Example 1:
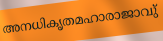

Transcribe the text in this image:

അനധികൃതമഹാരാജാവു്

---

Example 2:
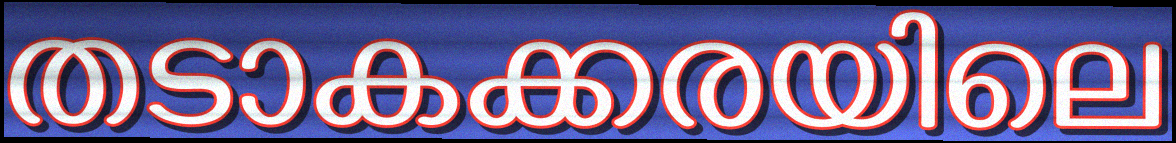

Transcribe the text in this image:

തടാകക്കരയിലെ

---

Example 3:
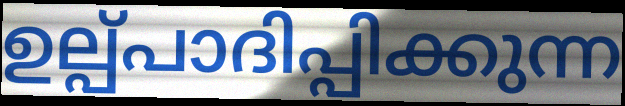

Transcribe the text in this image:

ഉല്പ്പാദിപ്പിക്കുന്ന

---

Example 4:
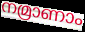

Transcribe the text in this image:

നമ്രാണാം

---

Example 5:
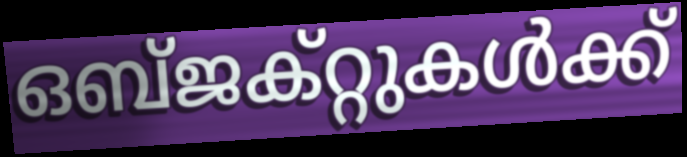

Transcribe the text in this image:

ഒബ്ജക്റ്റുകൾക്ക്